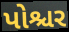
પોશ્ચર